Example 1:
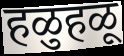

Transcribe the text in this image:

हळुहळू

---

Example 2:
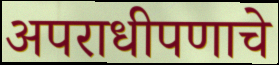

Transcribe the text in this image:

अपराधीपणाचे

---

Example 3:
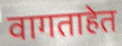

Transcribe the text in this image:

वागताहेत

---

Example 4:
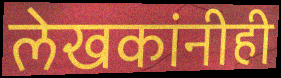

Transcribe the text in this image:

लेखकांनीही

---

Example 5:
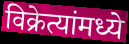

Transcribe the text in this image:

विक्रेत्यांमध्ये